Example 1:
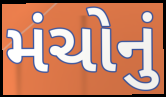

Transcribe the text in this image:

મંચોનું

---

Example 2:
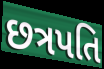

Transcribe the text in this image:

છત્રપતિ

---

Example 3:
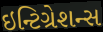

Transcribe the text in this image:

ઇન્ટિગ્રેશન્સ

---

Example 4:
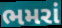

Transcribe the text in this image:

ભમરાં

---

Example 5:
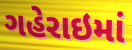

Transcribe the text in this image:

ગહેરાઇમાં